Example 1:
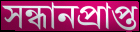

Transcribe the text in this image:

সন্ধানপ্রাপ্ত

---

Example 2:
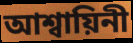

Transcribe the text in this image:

আশ্বায়িনী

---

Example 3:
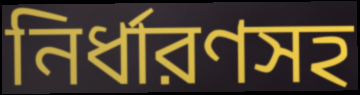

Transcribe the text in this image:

নির্ধারণসহ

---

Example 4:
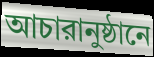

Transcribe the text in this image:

আচারানুষ্ঠানে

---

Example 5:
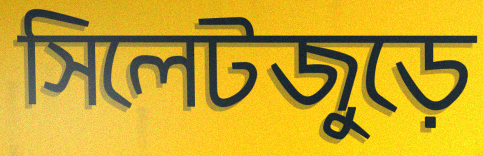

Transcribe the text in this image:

সিলেটজুড়ে